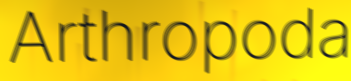
Arthropoda